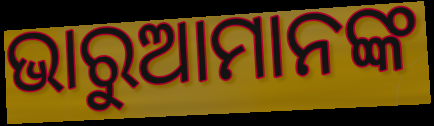
ଭାରୁଆମାନଙ୍କ